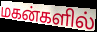
மகன்களில்